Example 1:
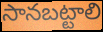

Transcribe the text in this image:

సానబట్టాలి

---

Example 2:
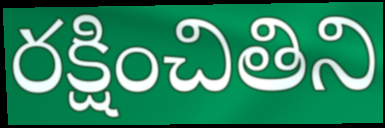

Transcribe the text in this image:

రక్షించితిని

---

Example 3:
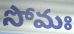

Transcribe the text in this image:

సోమః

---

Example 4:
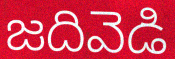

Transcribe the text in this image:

జదివెడి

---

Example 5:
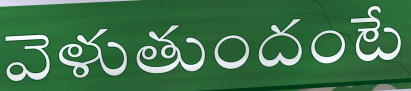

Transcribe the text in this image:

వెళుతుందంటే